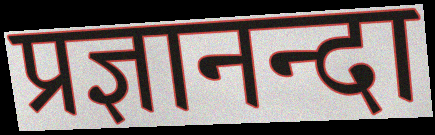
प्रज्ञानन्दा